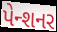
પેન્શનર